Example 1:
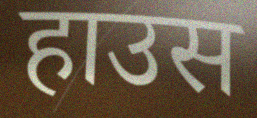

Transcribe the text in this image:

हाउस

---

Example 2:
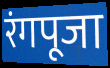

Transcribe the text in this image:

रंगपूजा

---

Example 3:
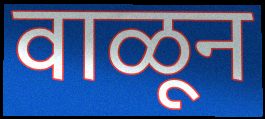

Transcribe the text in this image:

वाळून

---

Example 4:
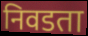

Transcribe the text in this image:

निवडता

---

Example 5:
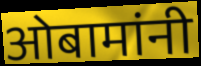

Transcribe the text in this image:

ओबामांनी